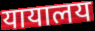
यायालय